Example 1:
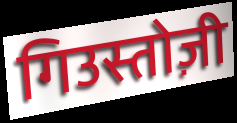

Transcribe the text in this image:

गिउस्तोज़ी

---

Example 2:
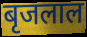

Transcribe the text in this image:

बृजलाल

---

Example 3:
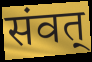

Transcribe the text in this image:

संवत्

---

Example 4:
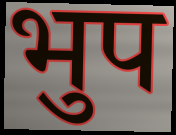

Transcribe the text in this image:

भुप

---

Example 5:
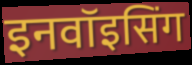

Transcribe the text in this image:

इनवॉइसिंग